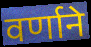
वर्णाने